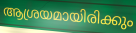
ആശ്രയമായിരിക്കും